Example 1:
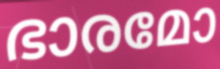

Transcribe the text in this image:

ഭാരമോ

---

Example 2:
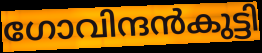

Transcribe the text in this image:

ഗോവിന്ദൻകുട്ടി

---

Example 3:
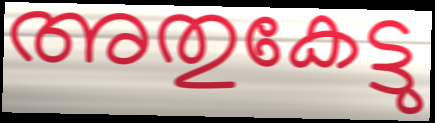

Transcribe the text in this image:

അതുകേട്ടു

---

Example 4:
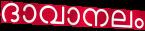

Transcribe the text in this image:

ദാവാനലം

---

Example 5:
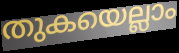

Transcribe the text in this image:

തുകയെല്ലാം